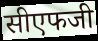
सीएफजी